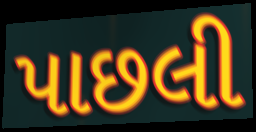
પાછલી